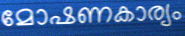
മോഷണകാര്യം